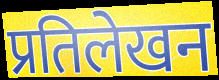
प्रतिलेखन